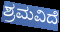
ಶ್ರಮವಿದೆ